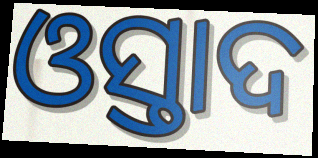
ଓସ୍ତାଦ